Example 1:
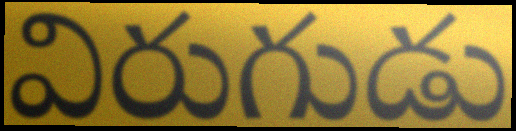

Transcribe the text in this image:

విరుగుడు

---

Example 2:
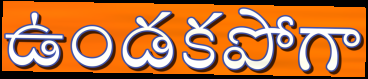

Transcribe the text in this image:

ఉండకపోగా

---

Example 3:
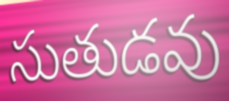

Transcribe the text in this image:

సుతుడవు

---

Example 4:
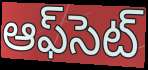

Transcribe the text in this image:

ఆఫ్‌సెట్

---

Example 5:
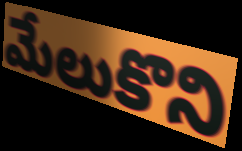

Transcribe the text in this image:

మేలుకొని